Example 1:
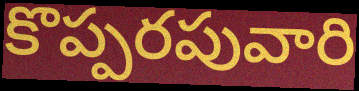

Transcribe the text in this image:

కొప్పరపువారి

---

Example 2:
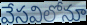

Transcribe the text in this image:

వేసవిలోనూ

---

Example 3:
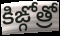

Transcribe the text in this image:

కిఙ్గోత్రో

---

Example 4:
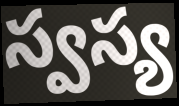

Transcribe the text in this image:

స్వస్య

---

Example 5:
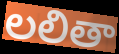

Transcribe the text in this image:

లలితా